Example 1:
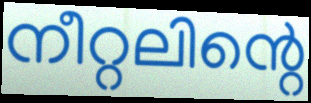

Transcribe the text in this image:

നീറ്റലിന്റെ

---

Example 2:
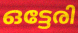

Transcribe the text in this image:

ഒട്ടേരി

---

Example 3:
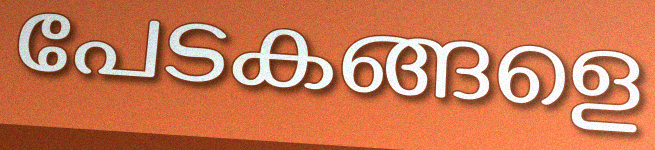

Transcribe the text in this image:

പേടകങ്ങളെ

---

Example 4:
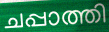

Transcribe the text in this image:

ചപ്പാത്തി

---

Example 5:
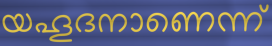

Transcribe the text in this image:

യഹൂദനാണെന്ന്